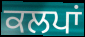
ਕਲਪਾਂ